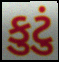
કુટું